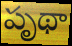
పృథా